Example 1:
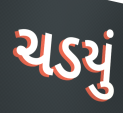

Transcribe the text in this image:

ચડયું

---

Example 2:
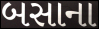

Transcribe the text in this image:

બસાના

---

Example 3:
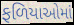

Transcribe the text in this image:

ફળિયાઓમાં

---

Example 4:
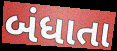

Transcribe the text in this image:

બંધાતા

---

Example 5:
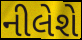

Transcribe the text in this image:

નીલેશે